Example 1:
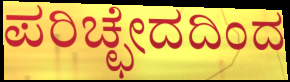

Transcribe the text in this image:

ಪರಿಚ್ಛೇದದಿಂದ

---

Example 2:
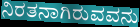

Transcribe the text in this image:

ನಿರತನಾಗಿರುವವನು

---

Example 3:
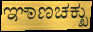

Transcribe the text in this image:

ಞಾಣಚಕ್ಖು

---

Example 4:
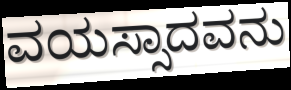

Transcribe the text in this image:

ವಯಸ್ಸಾದವನು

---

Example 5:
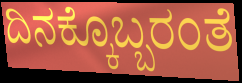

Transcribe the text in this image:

ದಿನಕ್ಕೊಬ್ಬರಂತೆ